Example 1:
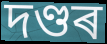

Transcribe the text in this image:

দণ্ডৰ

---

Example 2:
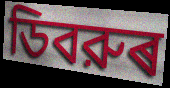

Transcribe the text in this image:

ডিবৰুৰ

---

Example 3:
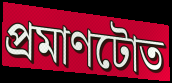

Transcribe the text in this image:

প্ৰমাণটোত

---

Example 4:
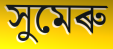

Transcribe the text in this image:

সুমেৰু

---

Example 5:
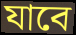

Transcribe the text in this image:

যাবে